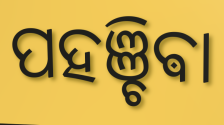
ପହଞ୍ଚିଵା